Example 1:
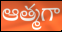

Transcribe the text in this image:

ఆత్మగా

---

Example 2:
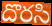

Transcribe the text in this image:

దొరసి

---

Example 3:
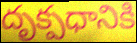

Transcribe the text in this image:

దృక్పధానికి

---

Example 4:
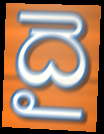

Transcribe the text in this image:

దై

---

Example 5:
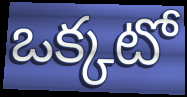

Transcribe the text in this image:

ఒక్కటో